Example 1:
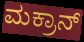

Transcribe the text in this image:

ಮಕ್ರಾನ್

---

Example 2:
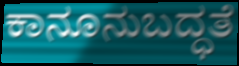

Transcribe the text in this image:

ಕಾನೂನುಬದ್ಧತೆ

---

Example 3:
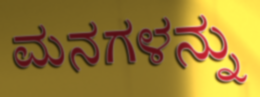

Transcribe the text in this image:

ಮನಗಳನ್ನು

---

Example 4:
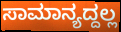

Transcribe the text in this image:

ಸಾಮಾನ್ಯದ್ದಲ್ಲ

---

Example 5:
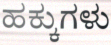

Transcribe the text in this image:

ಹಕ್ಕುಗಳು